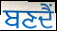
ਬਣਦੈਂ